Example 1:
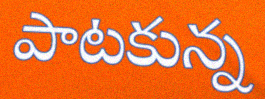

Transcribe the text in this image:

పాటకున్న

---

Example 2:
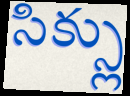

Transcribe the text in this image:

సిక్స్లు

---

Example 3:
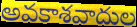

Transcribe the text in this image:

అవకాశవాదుల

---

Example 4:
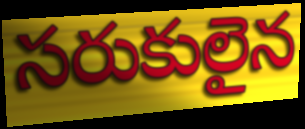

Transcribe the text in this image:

సరుకులైన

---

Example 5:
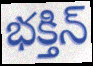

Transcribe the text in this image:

భక్తిన్